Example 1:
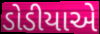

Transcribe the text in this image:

ડોડીયાએ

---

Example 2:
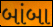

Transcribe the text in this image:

બાંબા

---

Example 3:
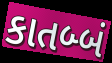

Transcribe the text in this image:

કાતબ્બં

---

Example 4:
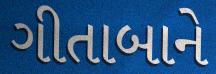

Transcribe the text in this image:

ગીતાબાને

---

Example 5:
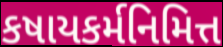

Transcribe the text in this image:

કષાયકર્મનિમિત્ત